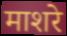
माशरे